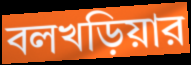
বলখড়িয়ার